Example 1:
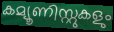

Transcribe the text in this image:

കമ്യൂണിസ്റ്റുകളും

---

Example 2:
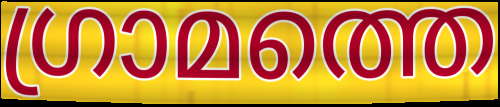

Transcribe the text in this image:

ഗ്രാമത്തെ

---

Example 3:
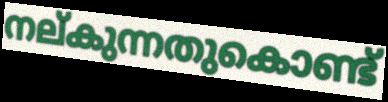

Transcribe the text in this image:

നല്കുന്നതുകൊണ്ട്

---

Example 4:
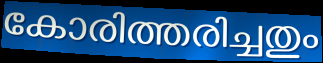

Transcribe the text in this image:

കോരിത്തരിച്ചതും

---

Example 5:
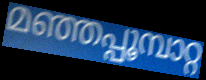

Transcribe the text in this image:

മഞ്ഞപ്പൂമ്പാറ്റ